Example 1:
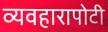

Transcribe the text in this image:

व्यवहारापोटी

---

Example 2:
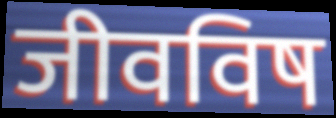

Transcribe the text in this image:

जीवविष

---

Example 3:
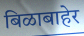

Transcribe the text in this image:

बिळाबाहेर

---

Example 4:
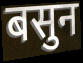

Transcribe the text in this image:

बसुन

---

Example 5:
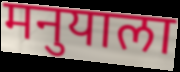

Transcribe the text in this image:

मनुयाला